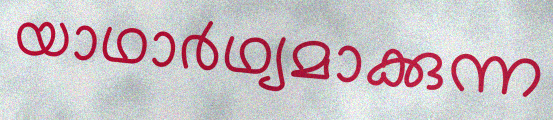
യാഥാർഥ്യമാക്കുന്ന